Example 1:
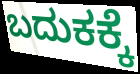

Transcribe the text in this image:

ಬದುಕಕ್ಕೆ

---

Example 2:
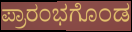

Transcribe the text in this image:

ಪ್ರಾರಂಭಗೊಂಡ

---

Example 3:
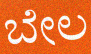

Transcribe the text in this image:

ಬೇಲ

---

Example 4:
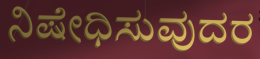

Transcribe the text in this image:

ನಿಷೇಧಿಸುವುದರ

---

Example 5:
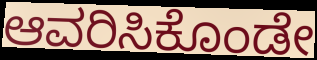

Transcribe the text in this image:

ಆವರಿಸಿಕೊಂಡೇ